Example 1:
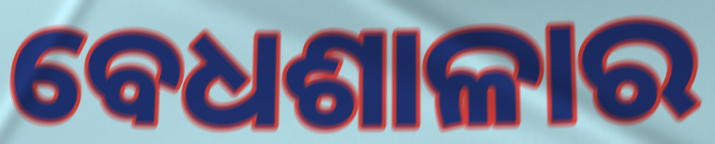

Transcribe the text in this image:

ବେଧଶାଳାର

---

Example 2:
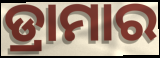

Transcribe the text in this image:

ଡ୍ରାମାର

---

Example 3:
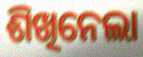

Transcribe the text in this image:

ଶିଖିନେଲା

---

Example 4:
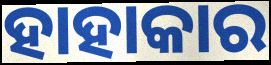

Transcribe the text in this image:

ହାହାକାର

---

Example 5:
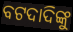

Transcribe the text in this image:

ବଟଦାଦିଙ୍କୁ